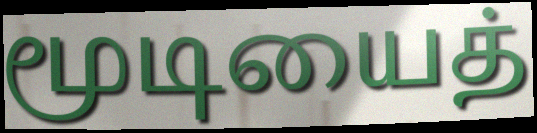
மூடியைத்